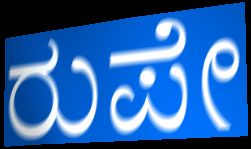
ರುಪೇ